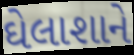
ઘેલાશાને